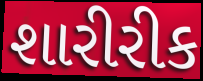
શારીરીક